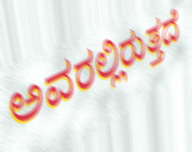
ಅವರಲ್ಲಿರುತ್ತದೆ